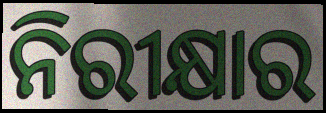
ନିରୀକ୍ଷାର